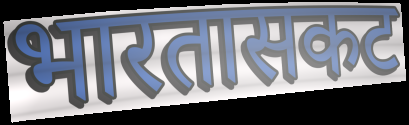
भारतासकट